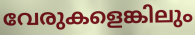
വേരുകളെങ്കിലും